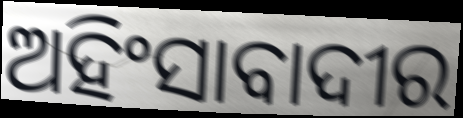
ଅହିଂସାବାଦୀର